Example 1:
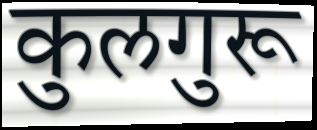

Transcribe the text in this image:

कुलगुरू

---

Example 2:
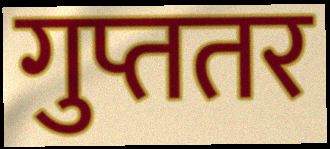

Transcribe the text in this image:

गुप्ततर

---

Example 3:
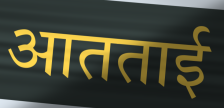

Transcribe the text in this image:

आतताई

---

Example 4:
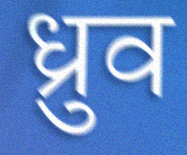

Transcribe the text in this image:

ध्रुव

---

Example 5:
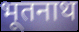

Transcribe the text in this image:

भूतनाथ